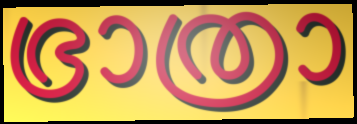
ഭ്രാത്രാ